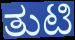
ತುಟಿ